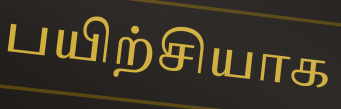
பயிற்சியாக